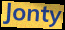
Jonty